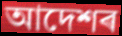
আদেশৰ